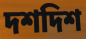
দশদিশ